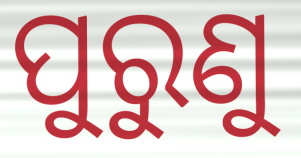
ପୁରୁଣୁ